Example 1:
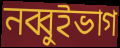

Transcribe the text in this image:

নব্বুইভাগ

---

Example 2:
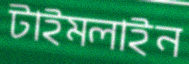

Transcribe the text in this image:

টাইমলাইন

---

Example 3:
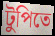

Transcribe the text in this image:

টুপিতে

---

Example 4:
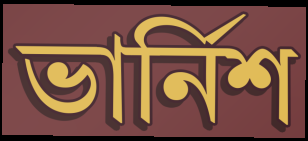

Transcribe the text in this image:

ভার্নিশ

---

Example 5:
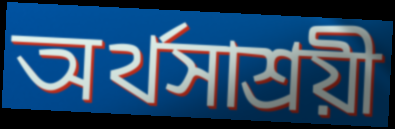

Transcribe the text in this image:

অর্থসাশ্রয়ী